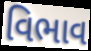
વિભાવ